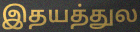
இதயத்துல